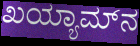
ಖಯ್ಯಾಮ್‌ನ